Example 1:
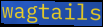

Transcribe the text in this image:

wagtails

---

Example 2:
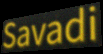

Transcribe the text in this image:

Savadi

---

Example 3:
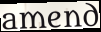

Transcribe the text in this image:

amend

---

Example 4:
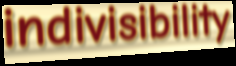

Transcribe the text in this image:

indivisibility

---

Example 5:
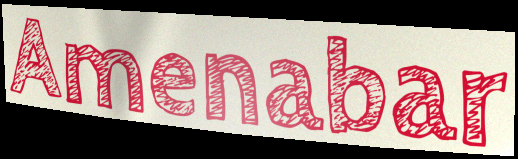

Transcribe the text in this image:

Amenabar